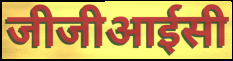
जीजीआईसी